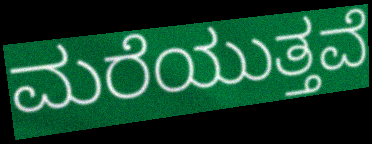
ಮರೆಯುತ್ತವೆ